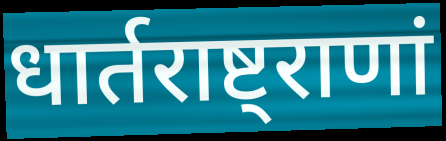
धार्तराष्ट्राणां